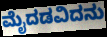
ಮೈದಡವಿದನು